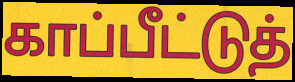
காப்பீட்டுத்